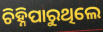
ଚିହ୍ନିପାରୁଥିଲେ